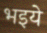
भइये